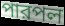
পারপল